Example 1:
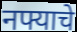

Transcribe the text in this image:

नफ्याचे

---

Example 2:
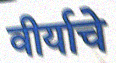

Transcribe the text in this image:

वीर्याचे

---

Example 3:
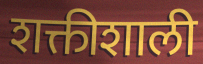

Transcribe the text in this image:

शक्तीशाली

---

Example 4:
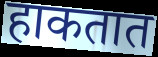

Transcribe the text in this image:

हाकतात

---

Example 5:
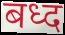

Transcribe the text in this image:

बध्द